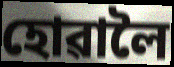
হোৱালৈ